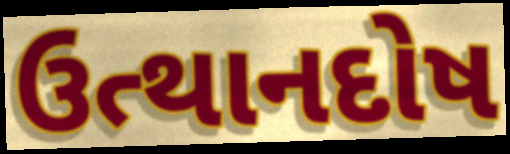
ઉત્થાનદોષ